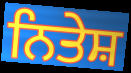
ਨਿਤੇਸ਼